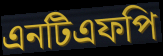
এনটিএফপি